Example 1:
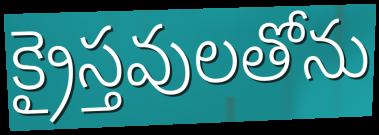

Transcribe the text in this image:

క్రైస్తవులతోను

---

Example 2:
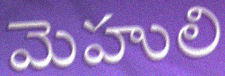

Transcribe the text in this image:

మెహులి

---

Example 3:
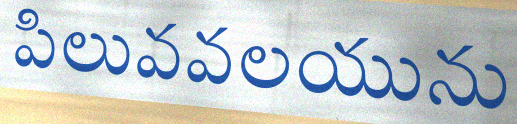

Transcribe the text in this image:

పిలువవలయును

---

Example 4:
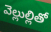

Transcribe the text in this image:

వెల్లుల్లితో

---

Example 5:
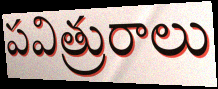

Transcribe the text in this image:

పవిత్రురాలు